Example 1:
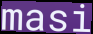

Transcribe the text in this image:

masi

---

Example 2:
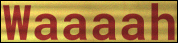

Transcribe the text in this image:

Waaaah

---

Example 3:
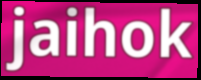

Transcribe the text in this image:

jaihok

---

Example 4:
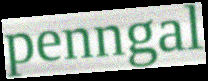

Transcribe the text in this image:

penngal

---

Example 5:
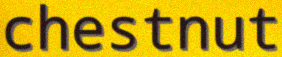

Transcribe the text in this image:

chestnut